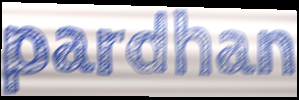
pardhan